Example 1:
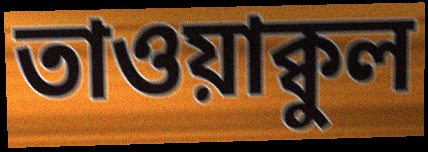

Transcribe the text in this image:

তাওয়াক্বুল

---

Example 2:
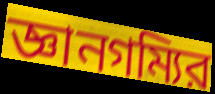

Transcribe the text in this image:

জ্ঞানগম্যির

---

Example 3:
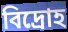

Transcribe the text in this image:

বিদ্রোহ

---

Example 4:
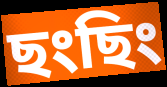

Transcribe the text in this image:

ছংছিং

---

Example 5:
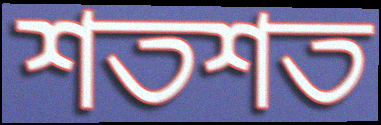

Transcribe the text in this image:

শতশত